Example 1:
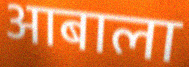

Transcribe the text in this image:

आबाला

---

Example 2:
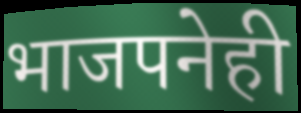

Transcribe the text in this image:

भाजपनेही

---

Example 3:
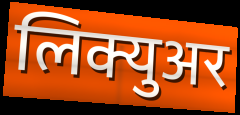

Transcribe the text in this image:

लिक्युअर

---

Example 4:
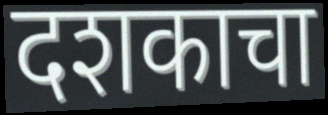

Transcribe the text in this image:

दशकाचा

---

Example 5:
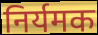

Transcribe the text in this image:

निर्यमक